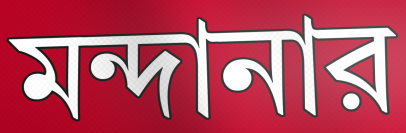
মন্দানার